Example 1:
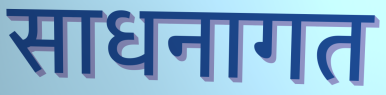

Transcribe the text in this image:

साधनागत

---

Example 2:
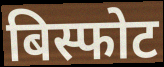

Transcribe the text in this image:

बिस्फोट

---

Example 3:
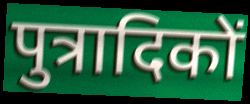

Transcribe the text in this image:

पुत्रादिकों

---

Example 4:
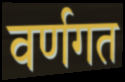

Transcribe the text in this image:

वर्णगत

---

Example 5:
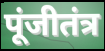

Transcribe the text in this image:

पूंजीतंत्र